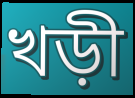
খড়ী